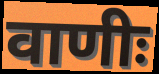
वाणीः